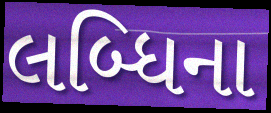
લબ્ધિના